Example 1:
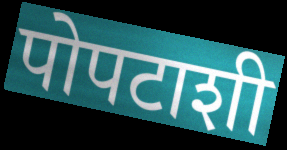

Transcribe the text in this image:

पोपटाशी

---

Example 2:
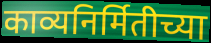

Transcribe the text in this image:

काव्यनिर्मितीच्या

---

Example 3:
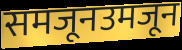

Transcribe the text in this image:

समजूनउमजून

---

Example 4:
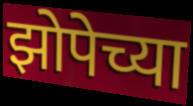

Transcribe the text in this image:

झोपेच्या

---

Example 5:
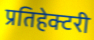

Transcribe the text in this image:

प्रतिहेक्टरी